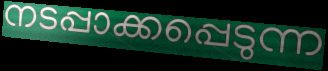
നടപ്പാക്കപ്പെടുന്ന